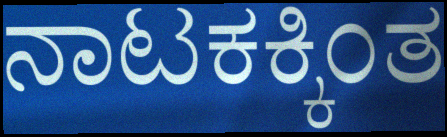
ನಾಟಕಕ್ಕಿಂತ